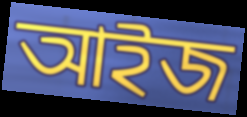
আইজ